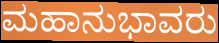
ಮಹಾನುಭಾವರು